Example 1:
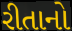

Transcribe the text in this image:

રીતાનો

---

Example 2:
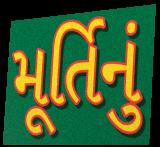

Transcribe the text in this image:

મૂર્તિનું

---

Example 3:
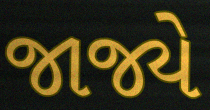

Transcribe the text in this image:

જાજ્યે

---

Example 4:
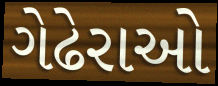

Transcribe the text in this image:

ગેઢેરાઓ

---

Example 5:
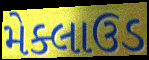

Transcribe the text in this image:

મેક્લાઉડ